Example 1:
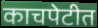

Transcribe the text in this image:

काचपेटीत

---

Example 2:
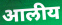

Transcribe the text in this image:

आलीय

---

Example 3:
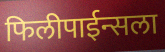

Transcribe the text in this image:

फिलीपाईन्सला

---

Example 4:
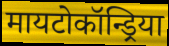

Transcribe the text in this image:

मायटोकॉन्ड्रिया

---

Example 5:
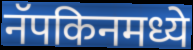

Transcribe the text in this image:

नॅपकिनमध्ये